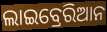
ଲାଇବ୍ରେରିଆନ